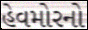
હેવમોરનો